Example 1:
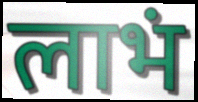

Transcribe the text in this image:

लाभं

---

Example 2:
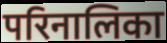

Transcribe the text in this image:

परिनालिका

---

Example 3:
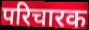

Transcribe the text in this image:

परिचारक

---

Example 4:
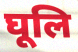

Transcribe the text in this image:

घूलि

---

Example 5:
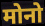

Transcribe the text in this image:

मोनो